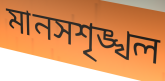
মানসশৃঙ্খল